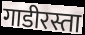
गाडीरस्ता